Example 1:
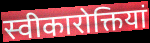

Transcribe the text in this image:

स्वीकारोक्तियां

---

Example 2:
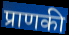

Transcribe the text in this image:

प्राणकी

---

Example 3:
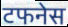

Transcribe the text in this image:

टफनेस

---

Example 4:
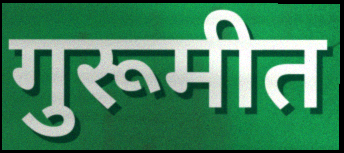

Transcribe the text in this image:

गुरूमीत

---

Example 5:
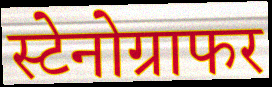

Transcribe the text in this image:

स्टेनोग्राफर